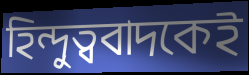
হিন্দুত্ববাদকেই